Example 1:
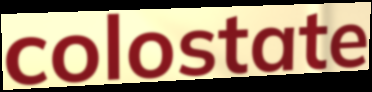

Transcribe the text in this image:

colostate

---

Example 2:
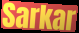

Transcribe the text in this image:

Sarkar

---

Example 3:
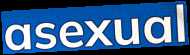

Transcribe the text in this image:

asexual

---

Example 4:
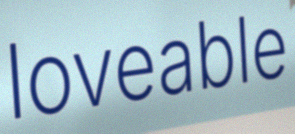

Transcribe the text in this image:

loveable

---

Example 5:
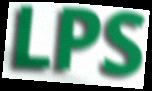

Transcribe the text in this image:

LPS